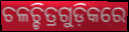
ଚଳଚ୍ଚିତ୍ରଗୁଡ଼ିକରେ